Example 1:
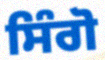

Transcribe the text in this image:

ਸਿੰਗੋ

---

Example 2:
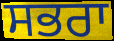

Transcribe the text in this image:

ਸਭਰਾ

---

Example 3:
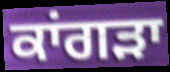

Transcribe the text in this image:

ਕਾਂਗੜਾ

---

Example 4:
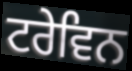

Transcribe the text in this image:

ਟਰੇਵਿਨ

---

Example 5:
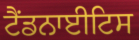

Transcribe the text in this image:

ਟੈਂਡਨਾਈਟਿਸ